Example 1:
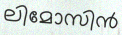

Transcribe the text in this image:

ലിമോസിൻ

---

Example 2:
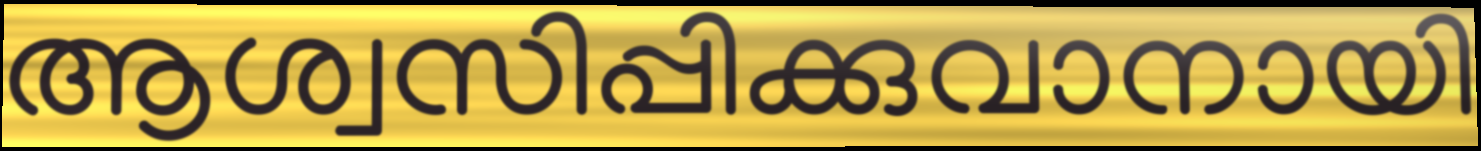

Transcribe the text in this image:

ആശ്വസിപ്പിക്കുവാനായി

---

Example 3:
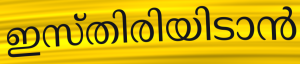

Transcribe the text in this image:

ഇസ്തിരിയിടാൻ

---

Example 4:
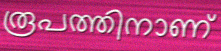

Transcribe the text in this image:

രൂപത്തിനാണ്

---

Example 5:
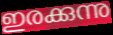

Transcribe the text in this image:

ഇരക്കുന്നു